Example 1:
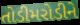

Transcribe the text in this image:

તોડીમરોડીને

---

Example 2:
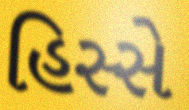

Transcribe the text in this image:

હિસ્સે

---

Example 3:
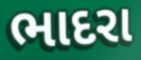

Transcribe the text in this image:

ભાદરા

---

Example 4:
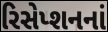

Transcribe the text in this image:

રિસેપ્શનનાં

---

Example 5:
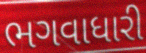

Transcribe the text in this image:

ભગવાધારી